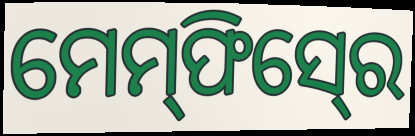
ମେମ୍‍ଫିସ୍‍ରେ